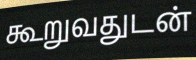
கூறுவதுடன்